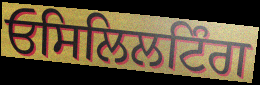
ਓਸਿਲਿਲਟਿੰਗ